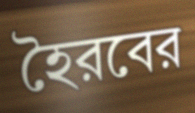
হৈরবের